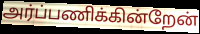
அர்ப்பணிக்கின்றேன்